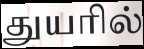
துயரில்